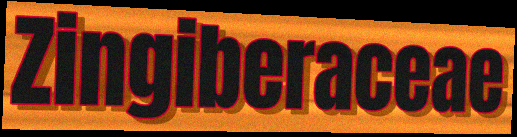
Zingiberaceae